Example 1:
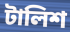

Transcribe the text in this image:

টালিশ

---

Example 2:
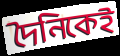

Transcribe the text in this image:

দৈনিকেই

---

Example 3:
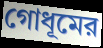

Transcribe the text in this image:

গোধূমের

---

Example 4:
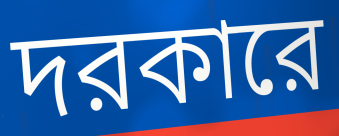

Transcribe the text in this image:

দরকারে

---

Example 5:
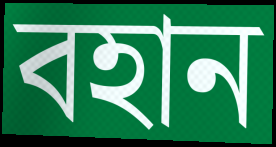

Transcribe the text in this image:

বহান